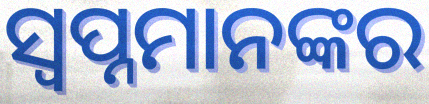
ସ୍ବପ୍ନମାନଙ୍କର